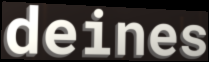
deines